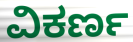
ವಿಕರ್ಣ